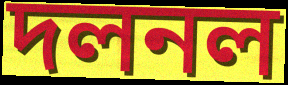
দলনল